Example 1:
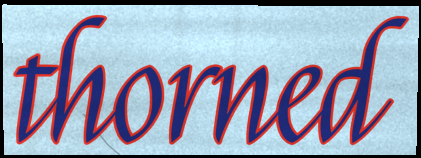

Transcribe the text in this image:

thorned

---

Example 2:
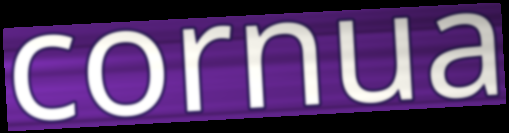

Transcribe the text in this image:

cornua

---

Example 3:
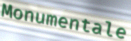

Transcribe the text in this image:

Monumentale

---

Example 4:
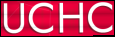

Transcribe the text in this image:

UCHC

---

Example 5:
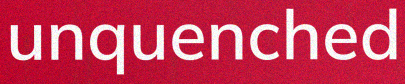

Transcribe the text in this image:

unquenched